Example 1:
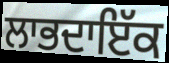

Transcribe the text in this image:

ਲਾਭਦਾਇੱਕ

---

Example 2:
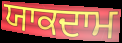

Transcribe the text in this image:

ਯਾਕਦਾਮ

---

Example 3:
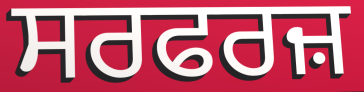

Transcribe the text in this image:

ਸਰਫਰਜ਼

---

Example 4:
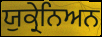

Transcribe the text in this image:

ਯੁਕ੍ਰੇਨਿਅਨ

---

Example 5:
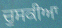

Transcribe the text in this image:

ਚੁਸਕੀਆ